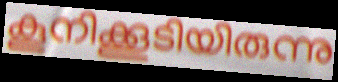
കൂനിക്കൂടിയിരുന്നു